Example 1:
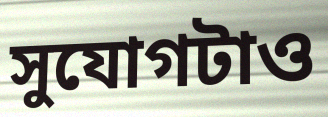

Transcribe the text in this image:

সুযোগটাও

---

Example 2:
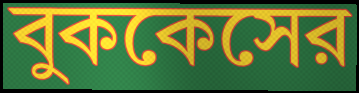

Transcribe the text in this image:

বুককেসের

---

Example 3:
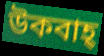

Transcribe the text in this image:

উকবাহ্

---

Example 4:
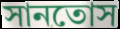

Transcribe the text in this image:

সানতোস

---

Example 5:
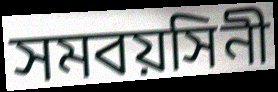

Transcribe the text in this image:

সমবয়সিনী